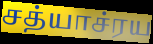
சத்யாச்ரய